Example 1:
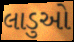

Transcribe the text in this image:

લાડુઓ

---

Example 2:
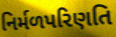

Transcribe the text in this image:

નિર્મળપરિણતિ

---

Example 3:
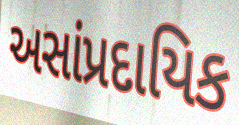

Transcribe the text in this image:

અસાંપ્રદાયિક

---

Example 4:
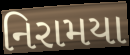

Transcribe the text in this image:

નિરામયા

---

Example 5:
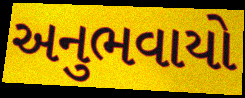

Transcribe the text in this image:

અનુભવાયો